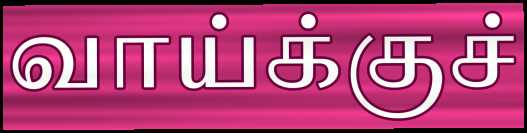
வாய்க்குச்